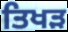
ਤਿਖੜ